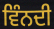
ਵਿੰਨਦੀ